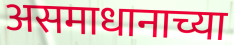
असमाधानाच्या